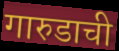
गारुडाची